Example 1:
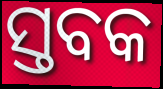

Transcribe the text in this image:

ସ୍ତବକ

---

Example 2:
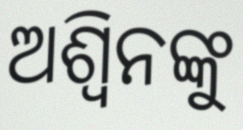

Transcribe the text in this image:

ଅଶ୍ବିନଙ୍କୁ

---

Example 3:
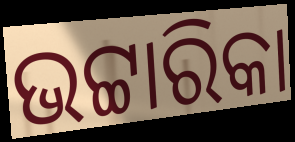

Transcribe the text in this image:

ଭଟ୍ଟାରିକା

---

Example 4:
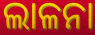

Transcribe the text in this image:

ଲାଳନା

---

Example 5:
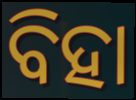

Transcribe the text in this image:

ବିହା